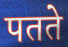
पतते